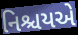
નિશ્ચયએ